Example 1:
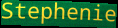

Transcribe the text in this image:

Stephenie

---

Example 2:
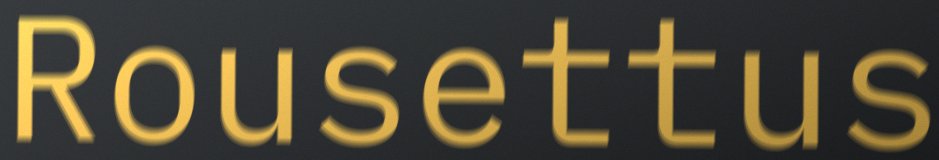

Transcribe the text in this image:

Rousettus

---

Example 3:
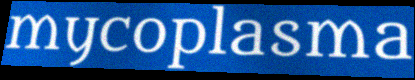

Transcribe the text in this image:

mycoplasma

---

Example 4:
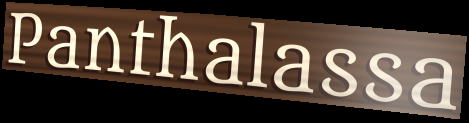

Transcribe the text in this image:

Panthalassa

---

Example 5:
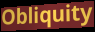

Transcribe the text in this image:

Obliquity